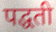
पद्धती